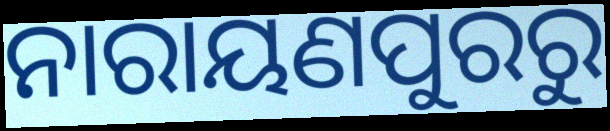
ନାରାୟଣପୁରରୁ